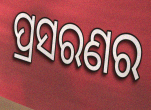
ପ୍ରସରଣର